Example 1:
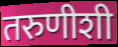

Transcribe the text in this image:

तरुणीशी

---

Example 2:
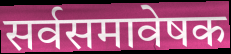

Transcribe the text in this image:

सर्वसमावेषक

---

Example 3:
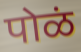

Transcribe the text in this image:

पोळं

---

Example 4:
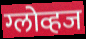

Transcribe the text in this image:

ग्लोव्हज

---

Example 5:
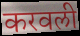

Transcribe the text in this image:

करवली